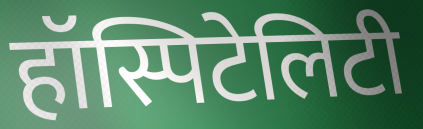
हॉस्पिटेलिटी